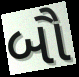
બૌ